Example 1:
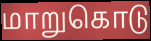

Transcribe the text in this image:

மாறுகொடு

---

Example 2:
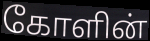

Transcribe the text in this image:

கோளின்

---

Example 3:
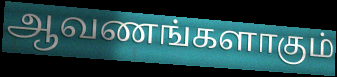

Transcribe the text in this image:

ஆவணங்களாகும்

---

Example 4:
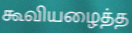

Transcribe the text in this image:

கூவியழைத்த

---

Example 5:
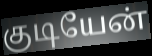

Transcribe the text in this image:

குடியேன்